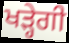
ਖੜ੍ਹੇਗੀ